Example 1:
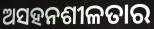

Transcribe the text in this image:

ଅସହନଶୀଳତାର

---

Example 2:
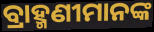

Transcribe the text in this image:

ବ୍ରାହ୍ମଣୀମାନଙ୍କ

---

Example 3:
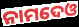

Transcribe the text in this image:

ନାମଦେଓ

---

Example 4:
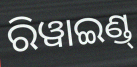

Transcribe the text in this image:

ରିୱାଇଣ୍ଡ୍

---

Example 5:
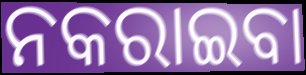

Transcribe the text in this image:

ନକରାଇବା